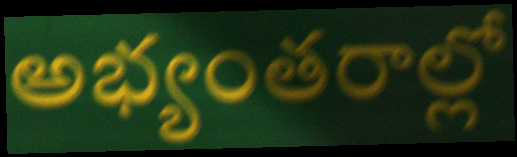
అభ్యంతరాల్లో